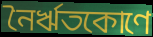
নৈর্ঋতকোণে